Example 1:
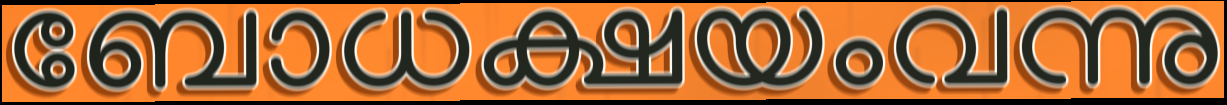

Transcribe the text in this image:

ബോധക്ഷയംവന്നു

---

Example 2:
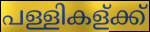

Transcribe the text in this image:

പള്ളികള്ക്ക്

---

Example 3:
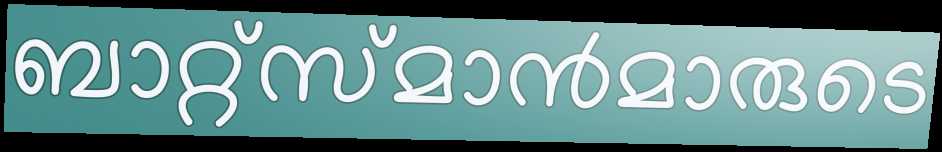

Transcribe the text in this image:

ബാറ്റ്സ്മാൻമാരുടെ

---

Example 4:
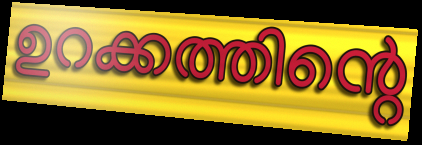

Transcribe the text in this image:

ഉറക്കത്തിന്റെ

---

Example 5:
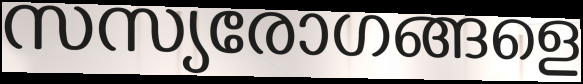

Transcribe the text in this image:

സസ്യരോഗങ്ങളെ